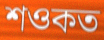
শওকত